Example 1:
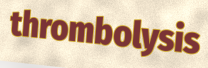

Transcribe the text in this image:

thrombolysis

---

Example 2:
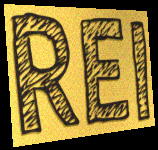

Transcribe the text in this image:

REI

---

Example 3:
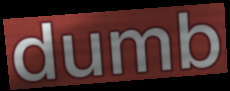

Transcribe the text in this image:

dumb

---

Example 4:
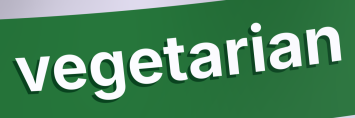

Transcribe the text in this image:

vegetarian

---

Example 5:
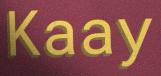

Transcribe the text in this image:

Kaay